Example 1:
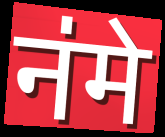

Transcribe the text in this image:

न॑मे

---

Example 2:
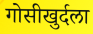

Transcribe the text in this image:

गोसीखुर्दला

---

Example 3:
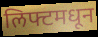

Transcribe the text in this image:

लिफ्टमधून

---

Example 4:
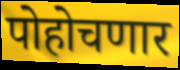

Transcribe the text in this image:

पोहोचणार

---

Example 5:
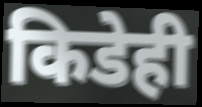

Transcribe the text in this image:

किडेही